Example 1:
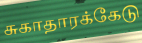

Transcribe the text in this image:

சுகாதாரக்கேடு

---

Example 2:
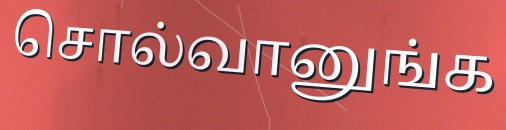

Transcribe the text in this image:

சொல்வானுங்க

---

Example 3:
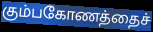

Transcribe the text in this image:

கும்பகோணத்தைச்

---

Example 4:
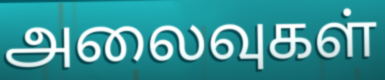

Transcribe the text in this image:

அலைவுகள்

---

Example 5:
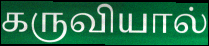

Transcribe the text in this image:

கருவியால்